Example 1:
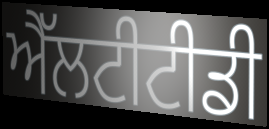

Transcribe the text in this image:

ਐੱਲਟੀਟੀਡੀ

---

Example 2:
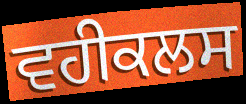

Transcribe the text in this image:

ਵਹੀਕਲਸ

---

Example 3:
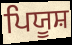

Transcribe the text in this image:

ਪਿਯੂਸ਼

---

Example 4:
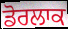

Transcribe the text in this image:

ਡੋਰਲਾਕ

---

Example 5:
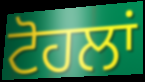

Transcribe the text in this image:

ਟੋਹਲਾਂ